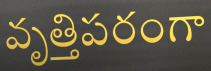
వృత్తిపరంగా